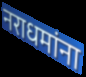
नराधमांना